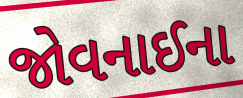
જોવનાઈના